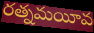
రత్నమయీవ